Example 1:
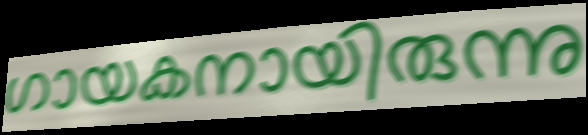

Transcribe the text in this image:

ഗായകനായിരുന്നു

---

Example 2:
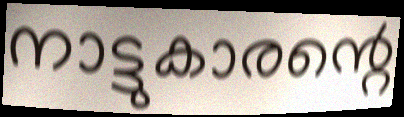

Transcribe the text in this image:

നാട്ടുകാരന്റെ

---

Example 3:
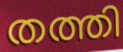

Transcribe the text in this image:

തത്തി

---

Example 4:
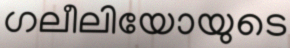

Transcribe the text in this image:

ഗലീലിയോയുടെ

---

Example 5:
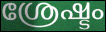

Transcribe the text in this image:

ശ്രേഷ്ടം